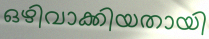
ഒഴിവാക്കിയതായി